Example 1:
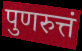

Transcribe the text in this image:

पुणरुत्तं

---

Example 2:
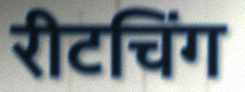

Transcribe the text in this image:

रीटचिंग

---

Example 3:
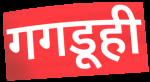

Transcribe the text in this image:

गगडूही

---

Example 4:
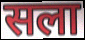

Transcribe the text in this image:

सला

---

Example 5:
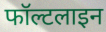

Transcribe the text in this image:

फॉल्टलाइन